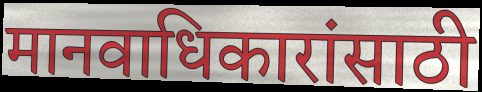
मानवाधिकारांसाठी